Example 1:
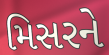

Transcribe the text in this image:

મિસરને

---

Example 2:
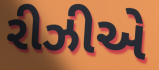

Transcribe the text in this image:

રીઝીએ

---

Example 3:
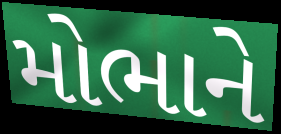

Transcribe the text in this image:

મોભાને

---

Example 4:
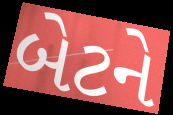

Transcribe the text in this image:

બેટને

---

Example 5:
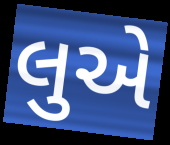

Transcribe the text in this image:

લુએ